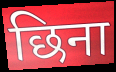
छिना